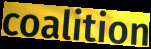
coalition